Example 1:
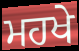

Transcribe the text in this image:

ਮਹਖੇ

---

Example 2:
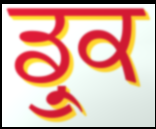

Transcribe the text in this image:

ਡ੍ਰੁਕ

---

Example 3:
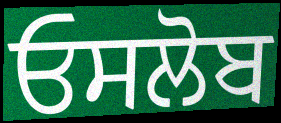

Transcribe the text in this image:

ਓਸਲੋਬ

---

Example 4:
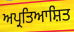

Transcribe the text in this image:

ਅਪ੍ਰਤਿਆਸ਼ਿਤ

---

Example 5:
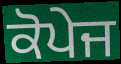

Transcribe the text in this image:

ਕੋਪੇਜ